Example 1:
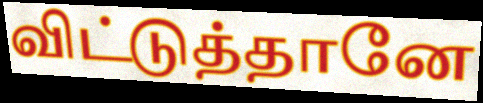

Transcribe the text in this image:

விட்டுத்தானே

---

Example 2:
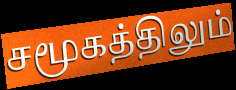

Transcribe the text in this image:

சமூகத்திலும்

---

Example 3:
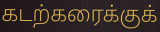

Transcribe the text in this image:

கடற்கரைக்குக்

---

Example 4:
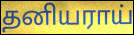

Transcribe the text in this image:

தனியராய்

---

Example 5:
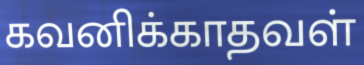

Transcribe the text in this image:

கவனிக்காதவள்